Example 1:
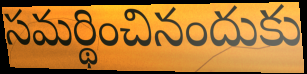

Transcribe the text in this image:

సమర్థించినందుకు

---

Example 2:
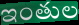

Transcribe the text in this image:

ఇంతుల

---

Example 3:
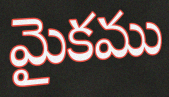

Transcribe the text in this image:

మైకము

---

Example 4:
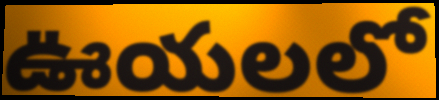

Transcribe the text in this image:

ఊయలలో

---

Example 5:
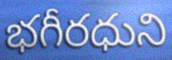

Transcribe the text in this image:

భగీరధుని